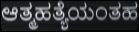
ಆತ್ಮಹತ್ಯೆಯಂತಹ